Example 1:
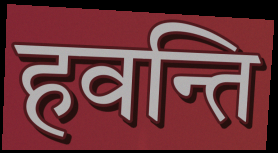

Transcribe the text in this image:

हवन्ति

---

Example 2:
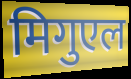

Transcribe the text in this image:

मिगुएल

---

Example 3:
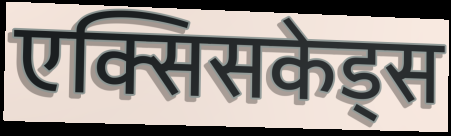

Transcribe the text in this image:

एक्सिसकेड्स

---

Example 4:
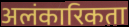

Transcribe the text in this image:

अलंकारिकता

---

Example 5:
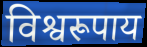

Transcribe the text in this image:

विश्वरूपाय